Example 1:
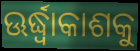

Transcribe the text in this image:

ଊର୍ଦ୍ଧ୍ୱାକାଶକୁ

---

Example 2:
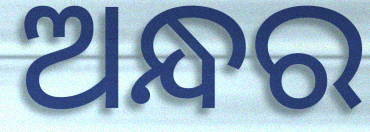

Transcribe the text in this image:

ଅନ୍ଧର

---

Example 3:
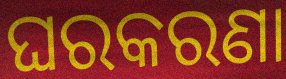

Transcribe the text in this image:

ଘରକରଣା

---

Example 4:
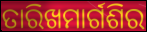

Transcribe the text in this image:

ତାରିଖମାର୍ଗଶିର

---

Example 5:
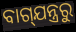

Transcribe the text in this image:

ବାଗ୍‌ଯନ୍ତ୍ରରୁ